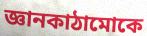
জ্ঞানকাঠামোকে